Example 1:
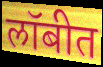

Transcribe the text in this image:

लॉबीत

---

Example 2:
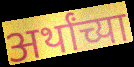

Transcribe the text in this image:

अर्थांच्या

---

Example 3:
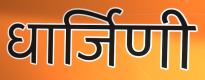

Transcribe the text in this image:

धार्जिणी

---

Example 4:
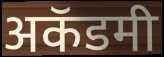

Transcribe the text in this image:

अकॅडमी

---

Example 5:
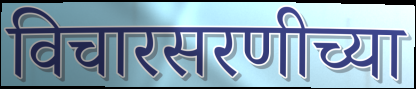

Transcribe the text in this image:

विचारसरणीच्या